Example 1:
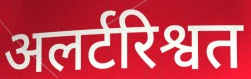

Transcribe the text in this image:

अलर्टरिश्वत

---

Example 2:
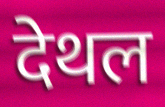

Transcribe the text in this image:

देथल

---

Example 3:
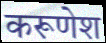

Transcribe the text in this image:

करूणेश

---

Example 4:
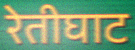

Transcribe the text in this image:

रेतीघाट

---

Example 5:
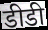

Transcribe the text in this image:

डीडी